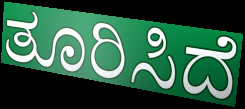
ತೂರಿಸಿದೆ